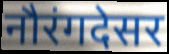
नौरंगदेसर